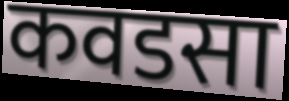
कवडसा